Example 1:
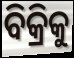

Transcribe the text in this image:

ବିକ୍ରିକୁ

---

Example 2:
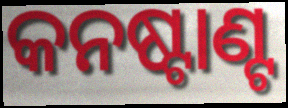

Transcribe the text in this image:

କନଷ୍ଟାଣ୍ଟ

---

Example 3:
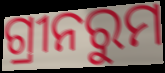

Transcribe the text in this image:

ଗ୍ରୀନରୁମ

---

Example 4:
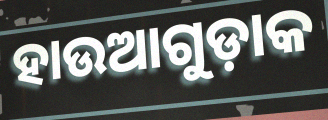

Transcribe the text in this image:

ହାଉଆଗୁଡ଼ାକ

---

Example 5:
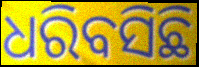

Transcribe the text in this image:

ଧରିବସିଛି